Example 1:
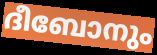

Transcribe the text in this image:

ദീബോനും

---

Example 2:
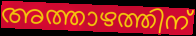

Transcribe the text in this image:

അത്താഴത്തിന്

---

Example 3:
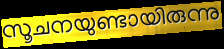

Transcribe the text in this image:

സൂചനയുണ്ടായിരുന്നു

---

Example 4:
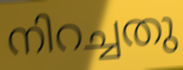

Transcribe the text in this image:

നിറച്ചതു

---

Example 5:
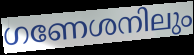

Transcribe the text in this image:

ഗണേശനിലും